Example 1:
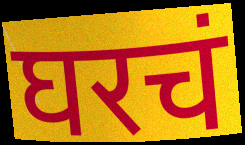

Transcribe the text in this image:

घरचं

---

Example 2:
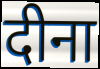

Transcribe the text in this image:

दीना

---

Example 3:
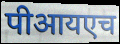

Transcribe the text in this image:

पीआयएच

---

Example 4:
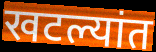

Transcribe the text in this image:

खटल्यांत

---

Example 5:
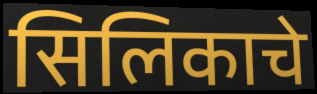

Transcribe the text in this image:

सिलिकाचे